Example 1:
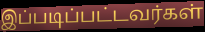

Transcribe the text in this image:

இப்படிப்பட்டவர்கள்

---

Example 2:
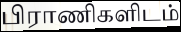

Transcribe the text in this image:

பிராணிகளிடம்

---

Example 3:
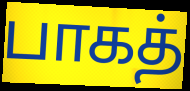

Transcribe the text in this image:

பாகத்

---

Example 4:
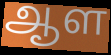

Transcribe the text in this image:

ஆள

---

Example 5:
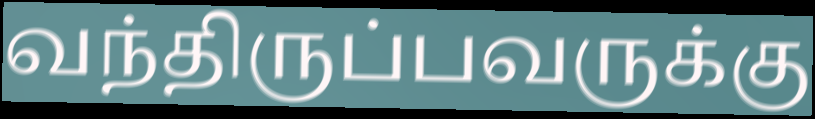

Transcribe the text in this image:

வந்திருப்பவருக்கு